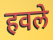
हवले